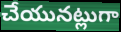
చేయునట్లుగా